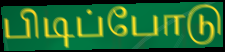
பிடிப்போடு